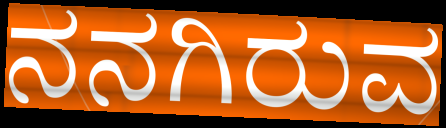
ನನಗಿರುವ